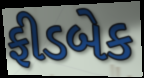
ફીડબેક